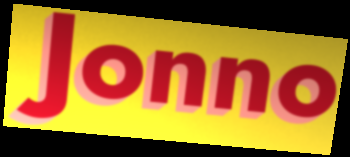
Jonno